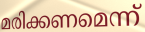
മരിക്കണമെന്ന്